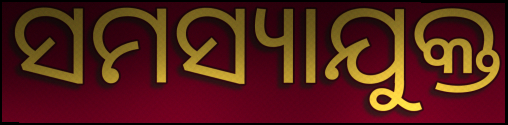
ସମସ୍ୟାଯୁକ୍ତ